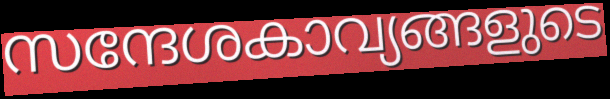
സന്ദേശകാവ്യങ്ങളുടെ